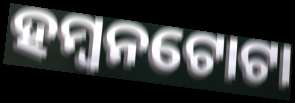
ହମ୍ବନଟୋଟା